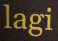
lagi